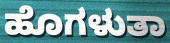
ಹೊಗಳುತಾ